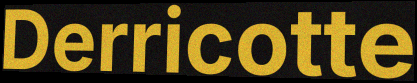
Derricotte